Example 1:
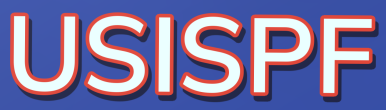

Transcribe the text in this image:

USISPF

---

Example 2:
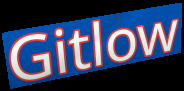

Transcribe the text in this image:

Gitlow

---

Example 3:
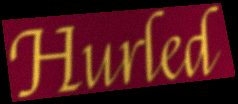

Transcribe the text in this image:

Hurled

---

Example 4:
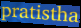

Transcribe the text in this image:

pratistha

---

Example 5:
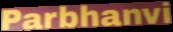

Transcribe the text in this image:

Parbhanvi